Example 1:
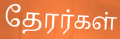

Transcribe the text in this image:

தேரர்கள்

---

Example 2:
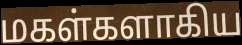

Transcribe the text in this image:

மகள்களாகிய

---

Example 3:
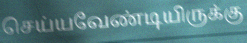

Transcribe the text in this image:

செய்யவேண்டியிருக்கு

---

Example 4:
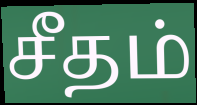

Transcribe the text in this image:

சீதம்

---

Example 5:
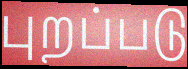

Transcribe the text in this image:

புறப்படு